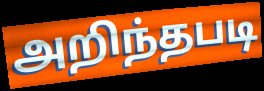
அறிந்தபடி